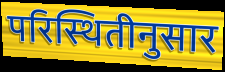
परिस्थितीनुसार